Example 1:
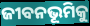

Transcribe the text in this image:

ଜୀବନଭୂମିକୁ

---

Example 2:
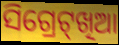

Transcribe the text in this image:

ସିଗ୍ରେଟ୍‌ଖିଆ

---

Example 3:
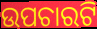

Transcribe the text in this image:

ଉପଚାରଟି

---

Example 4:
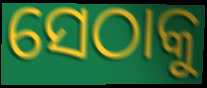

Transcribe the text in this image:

ସେଠାକୁ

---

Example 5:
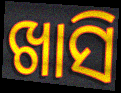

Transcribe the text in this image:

ଖାସି